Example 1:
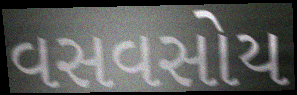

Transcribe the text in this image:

વસવસોય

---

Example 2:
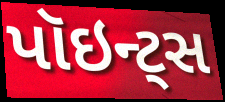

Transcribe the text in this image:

પૉઇન્ટ્સ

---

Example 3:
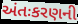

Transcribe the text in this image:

અંતઃકરણની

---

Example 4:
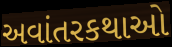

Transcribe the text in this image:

અવાંતરકથાઓ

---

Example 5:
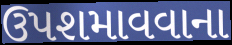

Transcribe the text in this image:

ઉપશમાવવાના